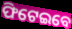
ଫିଟେଇବେ